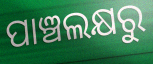
ପାଞ୍ଚଲକ୍ଷରୁ